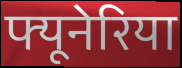
फ्यूनेरिया